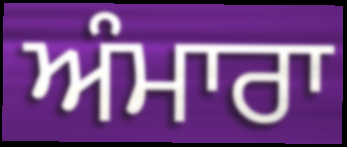
ਅੰਮਾਰਾ